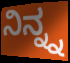
ನಿನ್ನ್ನ